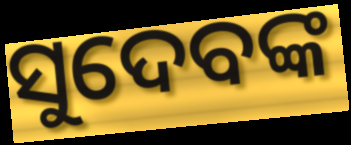
ସୁଦେବଙ୍କ